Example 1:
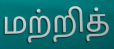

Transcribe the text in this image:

மற்றித்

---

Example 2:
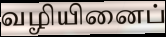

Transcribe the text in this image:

வழியினைப்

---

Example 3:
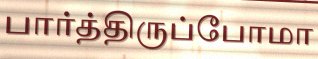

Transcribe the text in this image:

பார்த்திருப்போமா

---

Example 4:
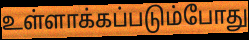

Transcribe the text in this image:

உள்ளாக்கப்படும்போது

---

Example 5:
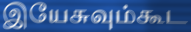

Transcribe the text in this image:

இயேசுவும்கூட